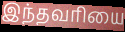
இந்தவரியை